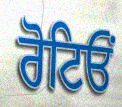
ਰੋਟਿਓਂ